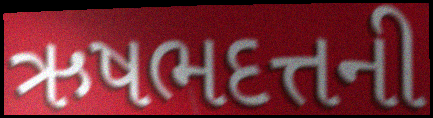
ઋષભદત્તની